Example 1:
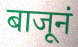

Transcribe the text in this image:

बाजूनं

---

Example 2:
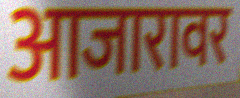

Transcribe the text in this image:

आजारावर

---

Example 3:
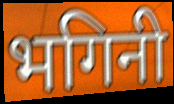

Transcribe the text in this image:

भगिनी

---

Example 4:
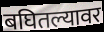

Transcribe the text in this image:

बघितल्यावर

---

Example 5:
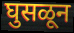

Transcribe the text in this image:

घुसळून